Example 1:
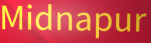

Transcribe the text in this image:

Midnapur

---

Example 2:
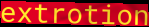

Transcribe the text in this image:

extrotion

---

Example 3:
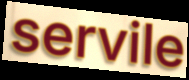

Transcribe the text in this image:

servile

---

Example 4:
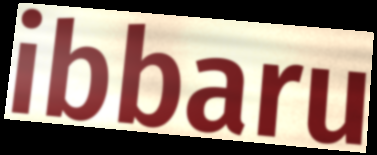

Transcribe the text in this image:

ibbaru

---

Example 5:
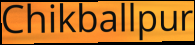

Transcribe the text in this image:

Chikballpur